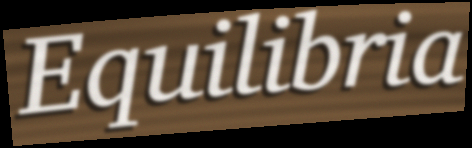
Equilibria